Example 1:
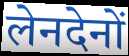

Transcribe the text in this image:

लेनदेनों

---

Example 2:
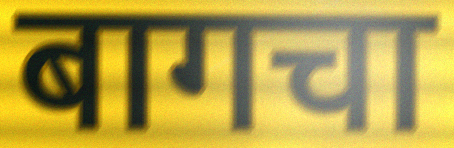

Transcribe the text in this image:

बागचा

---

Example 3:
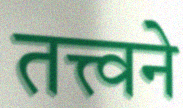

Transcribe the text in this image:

तत्त्वने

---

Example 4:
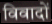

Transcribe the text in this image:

विवादों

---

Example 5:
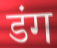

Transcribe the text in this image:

डंग